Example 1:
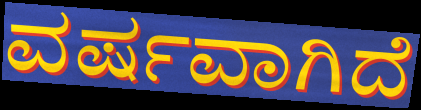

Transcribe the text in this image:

ವರ್ಷವಾಗಿದೆ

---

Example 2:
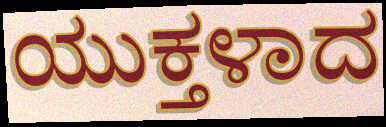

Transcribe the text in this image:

ಯುಕ್ತಳಾದ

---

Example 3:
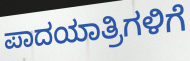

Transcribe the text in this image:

ಪಾದಯಾತ್ರಿಗಳಿಗೆ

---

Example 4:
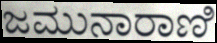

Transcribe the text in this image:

ಜಮುನಾರಾಣಿ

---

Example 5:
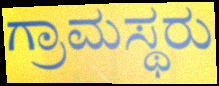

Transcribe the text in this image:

ಗ್ರಾಮಸ್ಥರು